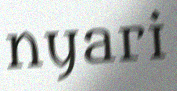
nyari